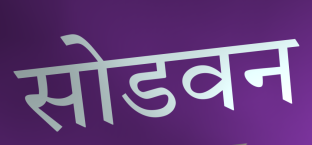
सोडवन